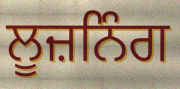
ਲੂਜ਼ਨਿੰਗ